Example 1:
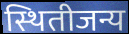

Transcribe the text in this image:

स्थितीजन्य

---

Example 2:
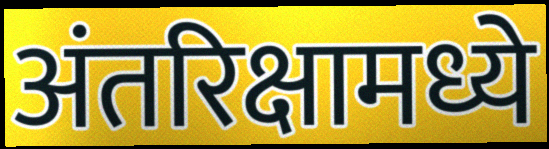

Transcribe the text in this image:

अंतरिक्षामध्ये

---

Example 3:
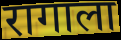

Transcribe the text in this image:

रागाला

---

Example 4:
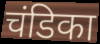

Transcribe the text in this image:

चंडिका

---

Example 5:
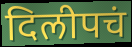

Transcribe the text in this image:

दिलीपचं